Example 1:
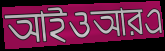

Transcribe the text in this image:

আইওআরএ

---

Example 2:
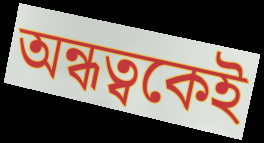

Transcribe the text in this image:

অন্ধত্বকেই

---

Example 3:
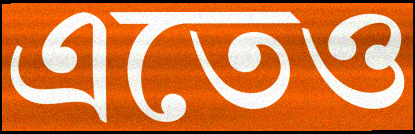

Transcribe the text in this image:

এতেও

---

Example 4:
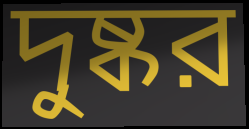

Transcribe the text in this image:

দুষ্কর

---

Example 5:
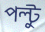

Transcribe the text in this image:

পল্টু